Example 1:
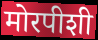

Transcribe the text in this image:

मोरपीशी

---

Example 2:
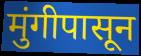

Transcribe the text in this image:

मुंगीपासून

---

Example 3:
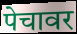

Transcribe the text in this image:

पेचावर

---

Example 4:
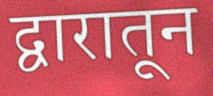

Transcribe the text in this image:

द्वारातून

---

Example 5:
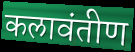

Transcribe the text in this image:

कलावंतीण